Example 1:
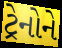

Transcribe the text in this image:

ટ્રેનોને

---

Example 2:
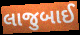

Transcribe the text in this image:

લાજુબાઈ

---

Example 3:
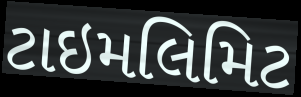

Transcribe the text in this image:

ટાઇમલિમિટ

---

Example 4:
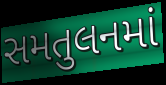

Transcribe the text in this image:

સમતુલનમાં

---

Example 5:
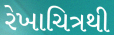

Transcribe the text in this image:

રેખાચિત્રથી